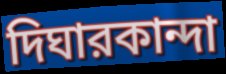
দিঘারকান্দা